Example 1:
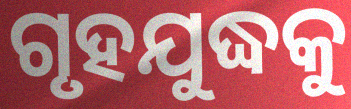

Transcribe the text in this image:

ଗୃହଯୁଦ୍ଧକୁ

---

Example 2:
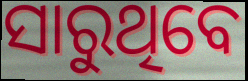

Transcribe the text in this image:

ସାରୁଥିବେ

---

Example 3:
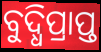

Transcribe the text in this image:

ବୁଦ୍ଧିପ୍ରାପ୍ତ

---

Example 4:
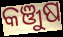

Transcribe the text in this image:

କଞ୍ଜୁଷ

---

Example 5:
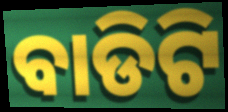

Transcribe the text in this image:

ବାଡିଟି